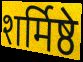
शर्मिष्ठे